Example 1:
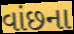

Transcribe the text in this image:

વાંછના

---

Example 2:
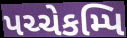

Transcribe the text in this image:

પચ્ચેકમ્પિ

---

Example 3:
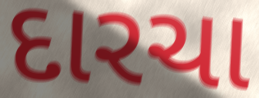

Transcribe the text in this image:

દારચા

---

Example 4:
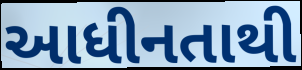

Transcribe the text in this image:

આધીનતાથી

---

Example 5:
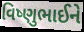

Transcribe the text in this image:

વિષ્ણુભાઈને